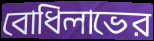
বোধিলাভের